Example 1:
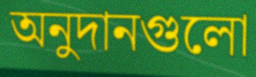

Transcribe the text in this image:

অনুদানগুলো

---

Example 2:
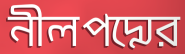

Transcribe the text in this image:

নীলপদ্মের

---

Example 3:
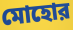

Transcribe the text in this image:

মোহোর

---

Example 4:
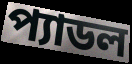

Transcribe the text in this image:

প্যাডল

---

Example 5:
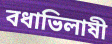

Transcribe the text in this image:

বধাভিলাষী